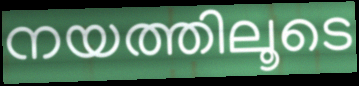
നയത്തിലൂടെ